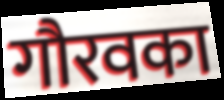
गौरवका